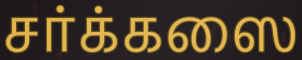
சர்க்கஸை